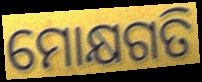
ମୋକ୍ଷଗତି